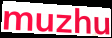
muzhu